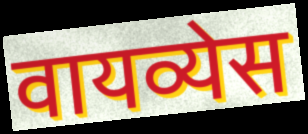
वायव्येस